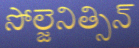
సోల్జెనిత్సిన్